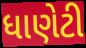
ધાણેટી